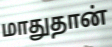
மாதுதான்